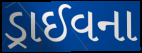
ડ્રાઈવના